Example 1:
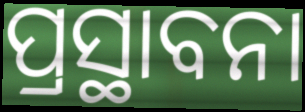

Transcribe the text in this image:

ପ୍ରସ୍ଥାବନା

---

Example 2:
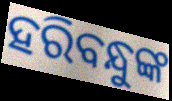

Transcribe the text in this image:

ହରିବନ୍ଧୁଙ୍କ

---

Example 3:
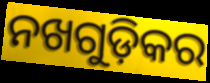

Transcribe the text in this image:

ନଖଗୁଡ଼ିକର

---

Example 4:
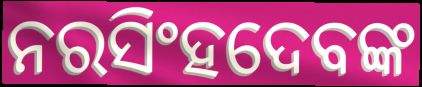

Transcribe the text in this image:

ନରସିଂହଦେବଙ୍କ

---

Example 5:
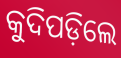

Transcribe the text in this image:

କୁଦିପଡ଼ିଲେ